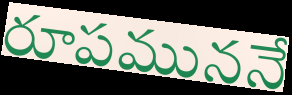
రూపముననే